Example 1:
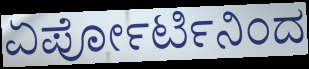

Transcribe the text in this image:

ಏರ್ಪೋರ್ಟಿನಿಂದ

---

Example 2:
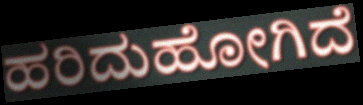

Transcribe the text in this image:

ಹರಿದುಹೋಗಿದೆ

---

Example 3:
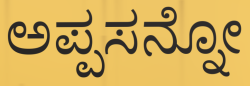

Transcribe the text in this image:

ಅಪ್ಪಸನ್ನೋ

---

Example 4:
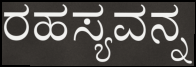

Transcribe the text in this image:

ರಹಸ್ಯವನ್ನ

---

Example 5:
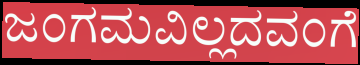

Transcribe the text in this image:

ಜಂಗಮವಿಲ್ಲದವಂಗೆ